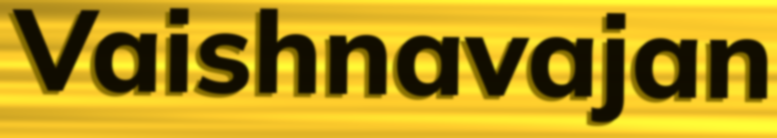
Vaishnavajan